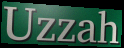
Uzzah